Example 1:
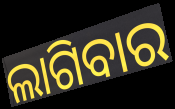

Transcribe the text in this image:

ଲାଗିବାର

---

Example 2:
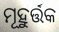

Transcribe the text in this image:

ମୂହୁର୍ତ୍ତକ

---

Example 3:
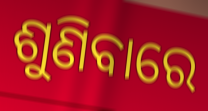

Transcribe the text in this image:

ଶୁଣିବାରେ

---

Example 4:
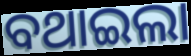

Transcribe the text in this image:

ବଥାଇଲା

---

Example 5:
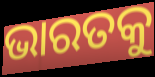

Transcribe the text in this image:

ଭାରତକୁ